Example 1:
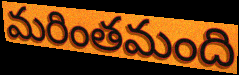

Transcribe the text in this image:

మరింతమంది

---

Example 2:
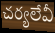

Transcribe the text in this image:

చర్యలేవీ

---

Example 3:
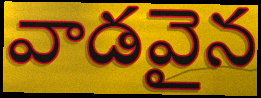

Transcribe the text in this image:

వాడవైన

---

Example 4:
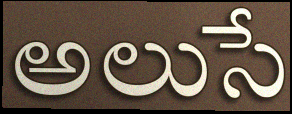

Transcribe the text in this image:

అలుసే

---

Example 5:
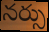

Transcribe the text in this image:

నర్సు